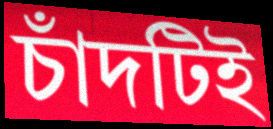
চাঁদটিই